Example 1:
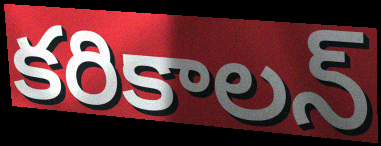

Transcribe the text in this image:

కరికాలన్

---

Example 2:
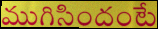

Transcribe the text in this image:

ముగిసిందంటే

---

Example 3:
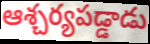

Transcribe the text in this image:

ఆశ్చర్యపడ్డాడు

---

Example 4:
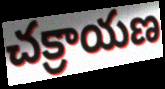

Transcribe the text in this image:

చక్రాయణ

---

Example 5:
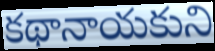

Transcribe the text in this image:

కథానాయకుని